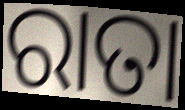
ରାତା